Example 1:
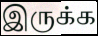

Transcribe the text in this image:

இருக்க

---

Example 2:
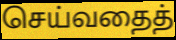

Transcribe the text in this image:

செய்வதைத்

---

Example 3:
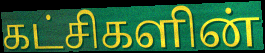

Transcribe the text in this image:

கட்சிகளின்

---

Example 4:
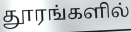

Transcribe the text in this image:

தூரங்களில்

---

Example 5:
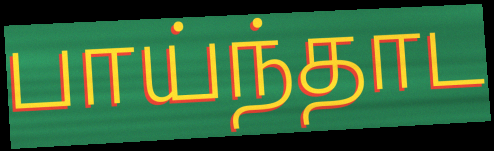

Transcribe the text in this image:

பாய்ந்தாட